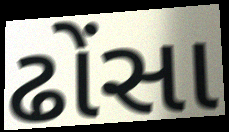
ઢોંસા